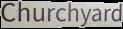
Churchyard